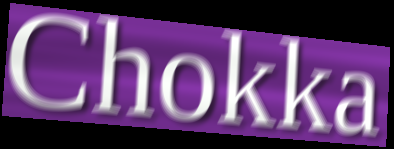
Chokka